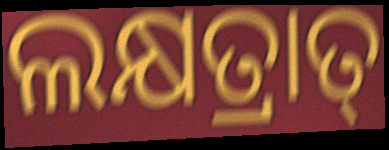
ଲକ୍ଷତ୍ରାତ୍